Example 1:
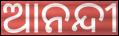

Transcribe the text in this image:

ଆନନ୍ଦୀ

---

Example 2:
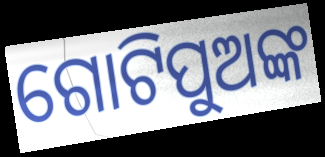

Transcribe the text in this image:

ଗୋଟିପୁଅଙ୍କ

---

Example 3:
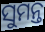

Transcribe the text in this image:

ସୁମନ୍ତ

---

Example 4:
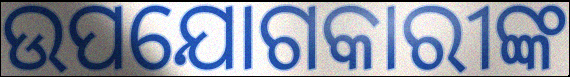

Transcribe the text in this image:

ଉପଯୋଗକାରୀଙ୍କ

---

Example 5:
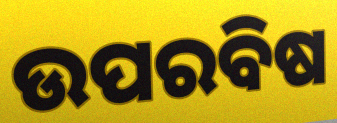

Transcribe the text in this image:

ଉପରବିଷ